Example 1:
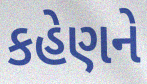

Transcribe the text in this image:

કહેણને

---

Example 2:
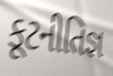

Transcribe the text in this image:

કૂટનીતિજ્ઞ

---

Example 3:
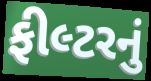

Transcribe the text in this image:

ફીલ્ટરનું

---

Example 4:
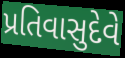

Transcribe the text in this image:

પ્રતિવાસુદેવે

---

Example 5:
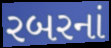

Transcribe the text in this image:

રબરનાં